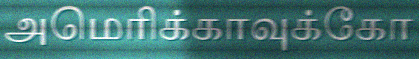
அமெரிக்காவுக்கோ